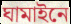
ঘামাইনে